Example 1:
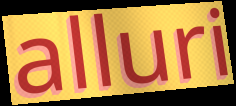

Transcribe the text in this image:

alluri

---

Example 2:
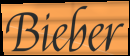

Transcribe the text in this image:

Bieber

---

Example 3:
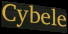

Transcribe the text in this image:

Cybele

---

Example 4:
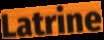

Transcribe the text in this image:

Latrine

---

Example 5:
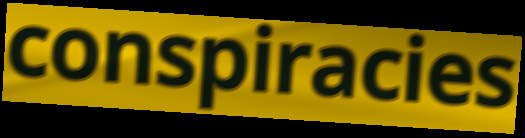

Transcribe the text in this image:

conspiracies